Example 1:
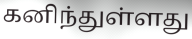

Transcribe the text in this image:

கனிந்துள்ளது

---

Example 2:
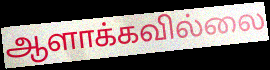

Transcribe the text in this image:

ஆளாக்கவில்லை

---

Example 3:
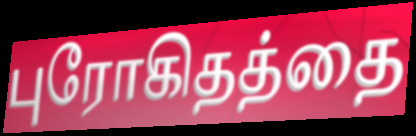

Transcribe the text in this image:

புரோகிதத்தை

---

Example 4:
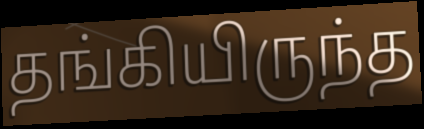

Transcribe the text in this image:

தங்கியிருந்த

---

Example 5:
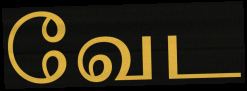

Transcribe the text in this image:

வேட